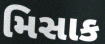
મિસાક